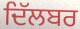
ਦਿੱਲਬਰ